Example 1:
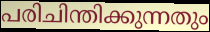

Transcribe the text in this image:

പരിചിന്തിക്കുന്നതും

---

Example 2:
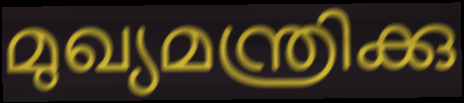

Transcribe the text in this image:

മുഖ്യമന്ത്രിക്കു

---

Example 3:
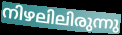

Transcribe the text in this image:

നിഴലിലിരുന്നു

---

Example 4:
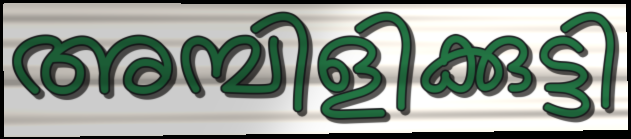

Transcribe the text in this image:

അമ്പിളിക്കുട്ടി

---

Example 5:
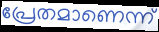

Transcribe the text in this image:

പ്രേതമാണെന്ന്